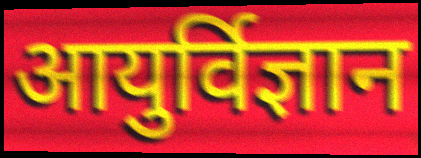
आयुर्विज्ञान